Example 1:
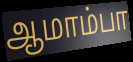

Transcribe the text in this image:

ஆமாம்பா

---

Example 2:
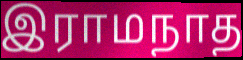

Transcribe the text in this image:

இராமநாத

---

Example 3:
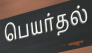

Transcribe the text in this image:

பெயர்தல்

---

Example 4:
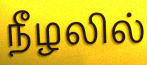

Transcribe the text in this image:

நீழலில்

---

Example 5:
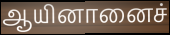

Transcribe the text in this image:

ஆயினானைச்